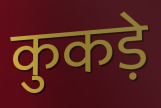
कुकड़े